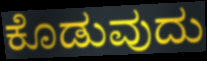
ಕೊಡುವುದು